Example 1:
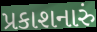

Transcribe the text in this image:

પ્રકાશનારું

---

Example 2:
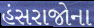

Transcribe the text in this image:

હંસરાજોના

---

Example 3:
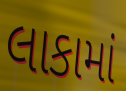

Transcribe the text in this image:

લાકામાં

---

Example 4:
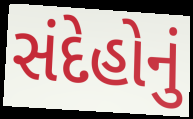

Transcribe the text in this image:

સંદેહોનું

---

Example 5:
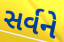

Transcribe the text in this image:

સર્વને